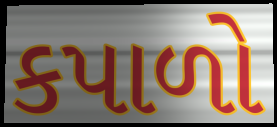
કપાળો